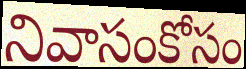
నివాసంకోసం